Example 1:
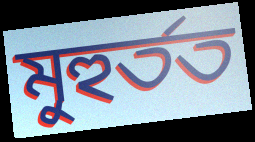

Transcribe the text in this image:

মুহুৰ্তত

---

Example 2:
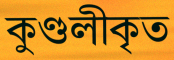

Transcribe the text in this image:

কুণ্ডলীকৃত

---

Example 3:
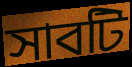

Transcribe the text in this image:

সাবটি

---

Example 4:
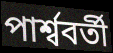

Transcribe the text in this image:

পাৰ্শ্ববৰ্তী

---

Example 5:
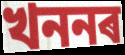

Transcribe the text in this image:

খননৰ